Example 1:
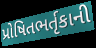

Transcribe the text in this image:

પ્રોષિતભર્તૃકાની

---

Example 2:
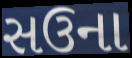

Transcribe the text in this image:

સઉના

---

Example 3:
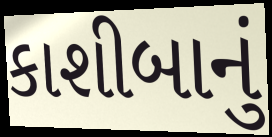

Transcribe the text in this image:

કાશીબાનું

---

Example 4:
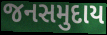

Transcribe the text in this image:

જનસમુદાય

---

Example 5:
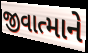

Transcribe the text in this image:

જીવાત્માને